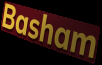
Basham